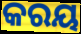
କରୟ